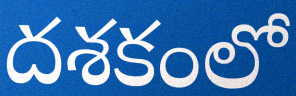
దశకంలో